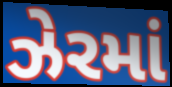
ઝેરમાં